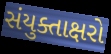
સંયુક્તાક્ષરો